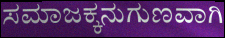
ಸಮಾಜಕ್ಕನುಗುಣವಾಗಿ